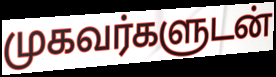
முகவர்களுடன்